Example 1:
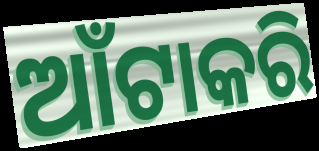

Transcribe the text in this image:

ଆଁଟାକରି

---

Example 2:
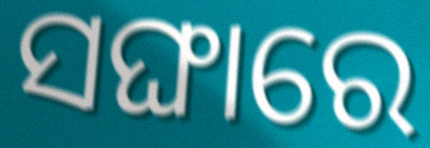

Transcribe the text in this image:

ସଙ୍ଘାରେ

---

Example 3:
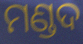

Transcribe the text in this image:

ମଣ୍ଡଦ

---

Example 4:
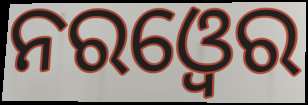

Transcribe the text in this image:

ନରଓ୍ବେର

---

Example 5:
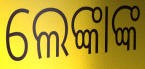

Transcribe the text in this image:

ଲେଙ୍କାଙ୍କ